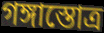
গঙ্গাস্তোত্র